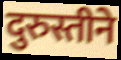
दुरुस्तीने